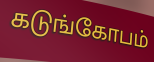
கடுங்கோபம்